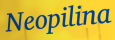
Neopilina